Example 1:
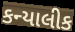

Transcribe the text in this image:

કન્યાલીક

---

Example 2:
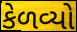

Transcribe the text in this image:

કેળવ્યો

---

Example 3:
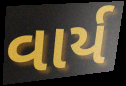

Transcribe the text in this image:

વાર્ય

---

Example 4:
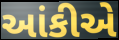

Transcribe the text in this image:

આંકીએ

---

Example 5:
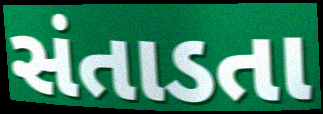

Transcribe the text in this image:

સંતાડતા